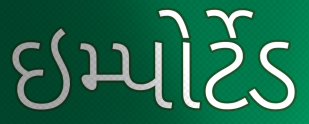
ઇમ્પોર્ટેડ